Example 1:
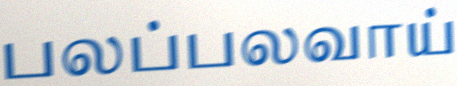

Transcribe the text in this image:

பலப்பலவாய்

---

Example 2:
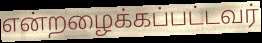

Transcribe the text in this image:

என்றழைக்கப்பட்டவர்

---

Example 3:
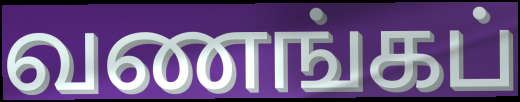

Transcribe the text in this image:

வணங்கப்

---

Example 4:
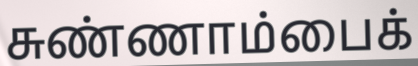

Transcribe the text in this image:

சுண்ணாம்பைக்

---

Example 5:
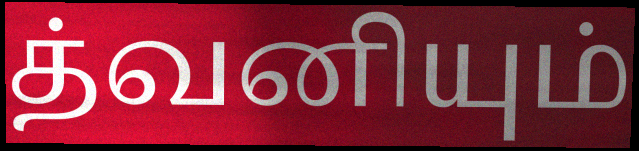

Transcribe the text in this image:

த்வனியும்